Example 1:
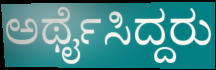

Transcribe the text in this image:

ಅರ್ಥೈಸಿದ್ದರು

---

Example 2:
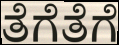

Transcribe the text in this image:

ತೆಗೆತೆಗೆ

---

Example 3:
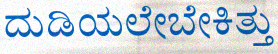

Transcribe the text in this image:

ದುಡಿಯಲೇಬೇಕಿತ್ತು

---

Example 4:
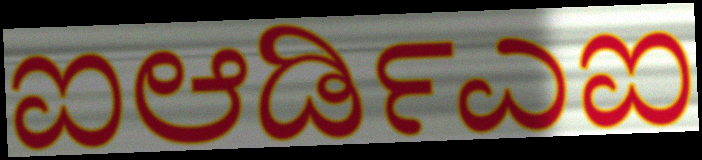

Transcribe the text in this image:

ಐಆರ್ಡಿಎಐ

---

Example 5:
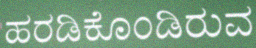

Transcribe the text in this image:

ಹರಡಿಕೊಂಡಿರುವ